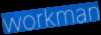
workman